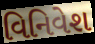
વિનિવેશ